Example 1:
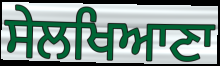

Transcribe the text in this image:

ਸੇਲਖਿਆਣਾ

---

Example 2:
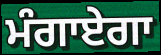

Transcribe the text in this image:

ਮੰਗਾਏਗਾ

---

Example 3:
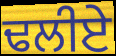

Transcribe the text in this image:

ਢਲੀਏ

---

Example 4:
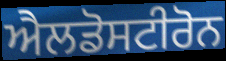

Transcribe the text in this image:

ਐਲਡੋਸਟੀਰੋਨ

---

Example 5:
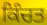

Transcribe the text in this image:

ਕਿੰਚਤ